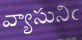
వ్యాసునిఁ